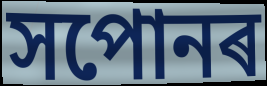
সপোনৰ